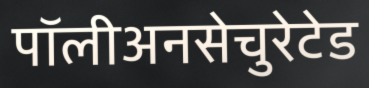
पॉलीअनसेचुरेटेड